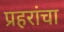
प्रहरांचा